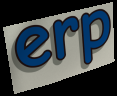
erp